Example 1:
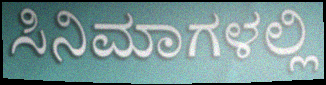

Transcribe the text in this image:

ಸಿನಿಮಾಗಳಲ್ಲಿ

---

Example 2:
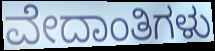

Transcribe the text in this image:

ವೇದಾಂತಿಗಳು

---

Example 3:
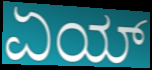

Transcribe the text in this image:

ಏಯ್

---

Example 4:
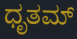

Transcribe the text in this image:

ಧೃತಮ್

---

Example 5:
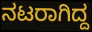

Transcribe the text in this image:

ನಟರಾಗಿದ್ದ